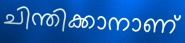
ചിന്തിക്കാനാണ്